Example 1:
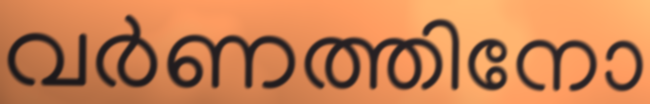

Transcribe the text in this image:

വർണത്തിനോ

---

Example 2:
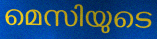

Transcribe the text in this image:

മെസിയുടെ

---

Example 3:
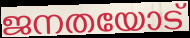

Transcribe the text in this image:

ജനതയോട്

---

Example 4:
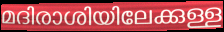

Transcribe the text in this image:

മദിരാശിയിലേക്കുള്ള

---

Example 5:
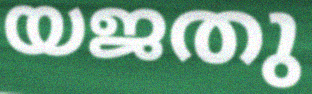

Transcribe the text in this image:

യജതു